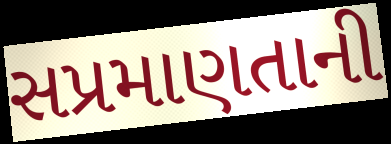
સપ્રમાણતાની